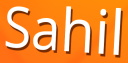
Sahil